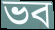
ভব